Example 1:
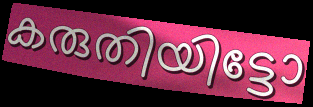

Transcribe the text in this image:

കരുതിയിട്ടോ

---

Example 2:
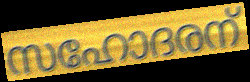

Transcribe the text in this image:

സഹോദരന്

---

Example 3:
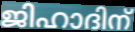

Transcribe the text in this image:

ജിഹാദിന്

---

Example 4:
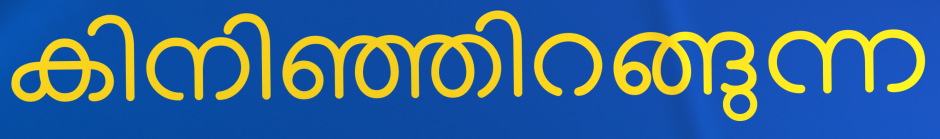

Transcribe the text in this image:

കിനിഞ്ഞിറങ്ങുന്ന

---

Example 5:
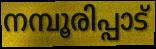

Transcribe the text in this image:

നമ്പൂരിപ്പാട്